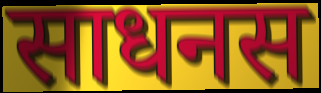
साधनस